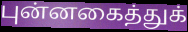
புன்னகைத்துக்